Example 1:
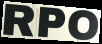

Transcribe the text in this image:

RPO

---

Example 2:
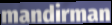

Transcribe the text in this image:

mandirman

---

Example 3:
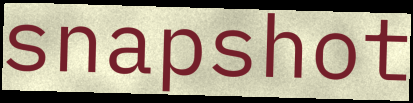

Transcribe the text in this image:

snapshot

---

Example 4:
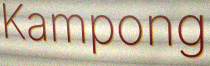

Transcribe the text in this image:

Kampong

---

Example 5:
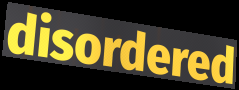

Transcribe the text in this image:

disordered